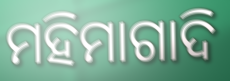
ମହିମାଗାଦି